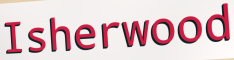
Isherwood